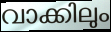
വാക്കിലും